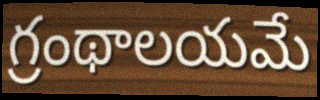
గ్రంథాలయమే